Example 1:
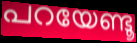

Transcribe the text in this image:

പറയേണ്ടൂ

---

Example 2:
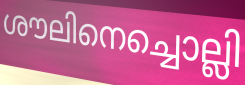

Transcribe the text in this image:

ശൗലിനെച്ചൊല്ലി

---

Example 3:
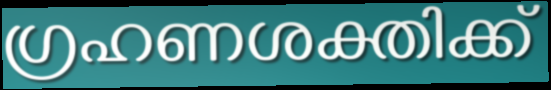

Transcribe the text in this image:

ഗ്രഹണശക്തിക്ക്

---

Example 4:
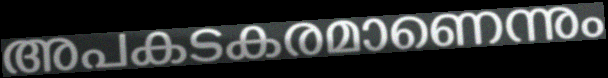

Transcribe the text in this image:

അപകടകരമാണെന്നും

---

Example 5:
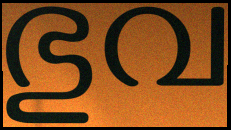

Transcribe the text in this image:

ഭുവ